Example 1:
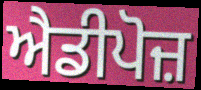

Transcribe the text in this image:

ਐਡੀਪੋਜ਼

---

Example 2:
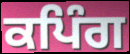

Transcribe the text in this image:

ਕਪਿੰਗ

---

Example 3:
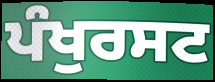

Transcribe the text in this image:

ਪੰਖੁਰਸਟ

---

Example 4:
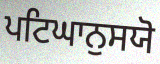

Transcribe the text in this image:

ਪਟਿਘਾਨੁਸਯੋ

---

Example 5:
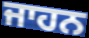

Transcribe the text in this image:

ਜਾਹਨ